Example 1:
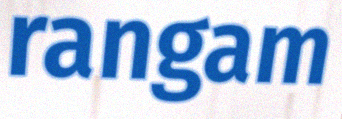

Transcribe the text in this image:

rangam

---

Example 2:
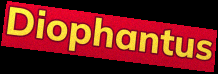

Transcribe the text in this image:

Diophantus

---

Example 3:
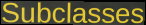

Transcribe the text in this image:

Subclasses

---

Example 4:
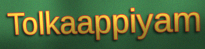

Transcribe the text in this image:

Tolkaappiyam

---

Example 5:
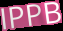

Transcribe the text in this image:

IPPB